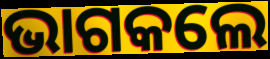
ଭାଗକଲେ